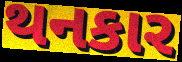
થનકાર